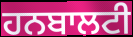
ਹਨਬਾਲਟੀ